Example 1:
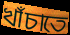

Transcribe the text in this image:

খাঁচাতে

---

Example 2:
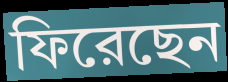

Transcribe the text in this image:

ফিরেছেন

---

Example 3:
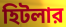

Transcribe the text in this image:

হিটলার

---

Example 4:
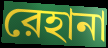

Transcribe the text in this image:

রেহানা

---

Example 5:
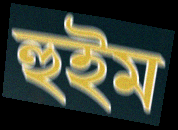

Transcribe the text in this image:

হুইম